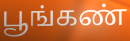
பூங்கண்